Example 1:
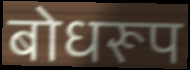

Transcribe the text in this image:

बोधरूप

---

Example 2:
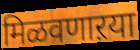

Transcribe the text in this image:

मिळवणाऱया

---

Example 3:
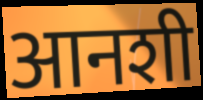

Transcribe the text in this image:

आनशी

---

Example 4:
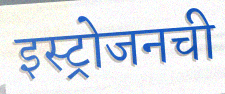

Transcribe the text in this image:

इस्ट्रोजनची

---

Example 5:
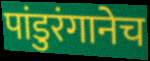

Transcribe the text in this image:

पांडुरंगानेच